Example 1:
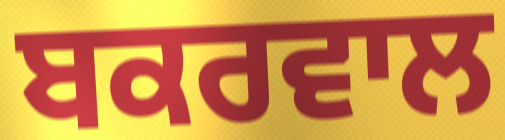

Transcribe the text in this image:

ਬਕਰਵਾਲ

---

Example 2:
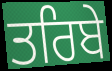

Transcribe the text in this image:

ਤਰਿਬੇ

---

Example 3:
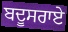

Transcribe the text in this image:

ਬਦੂਸਰਾਏ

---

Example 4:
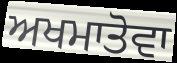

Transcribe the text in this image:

ਅਖਮਾਤੋਵਾ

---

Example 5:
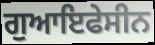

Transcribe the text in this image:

ਗੁਆਇਫੇਸੀਨ